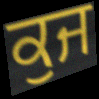
ਕੁਜ